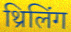
थ्रिलिंग